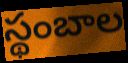
స్థంబాల